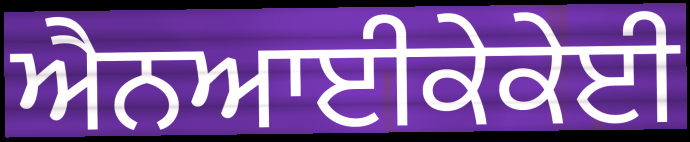
ਐਨਆਈਕੇਕੇਈ